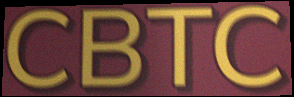
CBTC